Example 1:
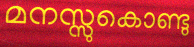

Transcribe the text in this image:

മനസ്സുകൊണ്ടു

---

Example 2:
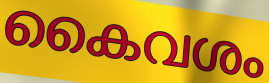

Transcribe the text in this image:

കൈവശം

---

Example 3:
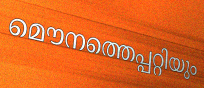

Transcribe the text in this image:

മൌനത്തെപ്പറ്റിയും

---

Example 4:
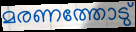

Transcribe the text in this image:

മരണത്തോടു്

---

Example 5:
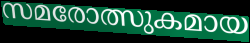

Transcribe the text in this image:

സമരോത്സുകമായ